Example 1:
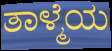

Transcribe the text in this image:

ತಾಳ್ಮೆಯ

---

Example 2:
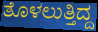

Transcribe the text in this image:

ತೊಳಲುತ್ತಿದ್ದ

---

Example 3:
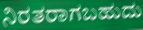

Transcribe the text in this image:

ನಿರತರಾಗಬಹುದು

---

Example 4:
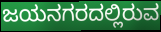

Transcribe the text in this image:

ಜಯನಗರದಲ್ಲಿರುವ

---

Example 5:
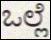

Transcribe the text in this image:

ಒಲ್ಲೆ